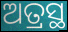
ଅତ୍ରସ୍ଥ